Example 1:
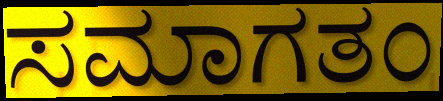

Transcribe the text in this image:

ಸಮಾಗತಂ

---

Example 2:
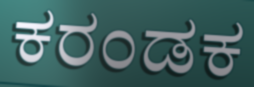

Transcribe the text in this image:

ಕರಂಡಕ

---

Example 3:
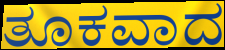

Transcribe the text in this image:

ತೂಕವಾದ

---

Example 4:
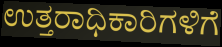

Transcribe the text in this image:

ಉತ್ತರಾಧಿಕಾರಿಗಳಿಗೆ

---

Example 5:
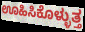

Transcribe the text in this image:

ಊಹಿಸಿಕೊಳ್ಳುತ್ತ